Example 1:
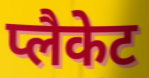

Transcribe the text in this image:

प्लैकेट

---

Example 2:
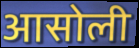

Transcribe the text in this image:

आसोली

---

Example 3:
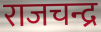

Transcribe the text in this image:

राजचन्द्र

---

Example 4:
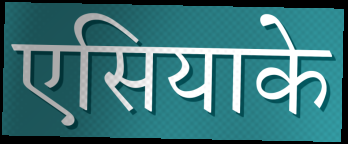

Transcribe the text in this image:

एसियाके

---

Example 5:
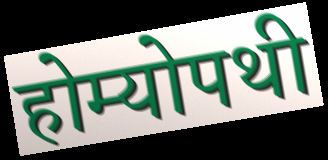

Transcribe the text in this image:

होम्योपथी